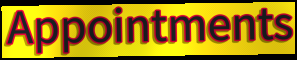
Appointments